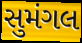
સુમંગલ